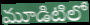
మూడిటిలో